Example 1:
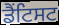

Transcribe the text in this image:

ਡੈਂਟਿਸਟ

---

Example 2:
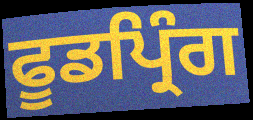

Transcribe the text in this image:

ਫੂਡਪ੍ਰਿੰਗ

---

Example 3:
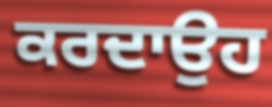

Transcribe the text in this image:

ਕਰਦਾਉਹ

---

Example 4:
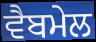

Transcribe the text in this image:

ਵੈਬਮੇਲ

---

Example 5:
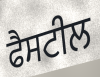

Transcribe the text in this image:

ਫੈਸਟੀਲ